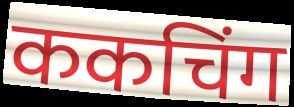
ककचिंग